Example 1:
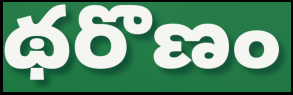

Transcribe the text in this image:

థరొణం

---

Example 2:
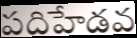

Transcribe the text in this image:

పదిహేడవ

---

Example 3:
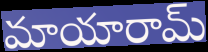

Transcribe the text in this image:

మాయారామ్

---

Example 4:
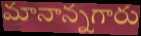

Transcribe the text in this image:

మానాన్నగారు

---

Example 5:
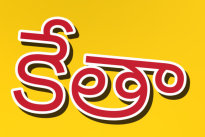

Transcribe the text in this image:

కేతా